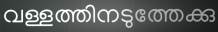
വള്ളത്തിനടുത്തേക്കു